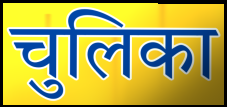
चुलिका